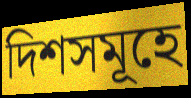
দিশসমূহে